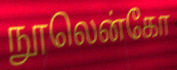
நூலென்கோ